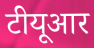
टीयूआर